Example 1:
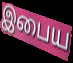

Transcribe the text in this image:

இபைய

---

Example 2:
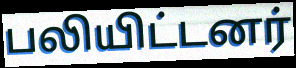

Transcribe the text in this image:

பலியிட்டனர்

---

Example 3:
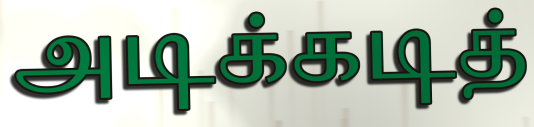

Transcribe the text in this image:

அடிக்கடித்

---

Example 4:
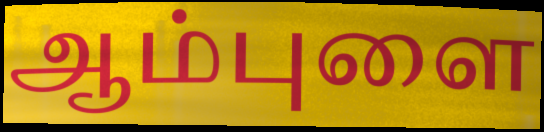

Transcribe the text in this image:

ஆம்புளை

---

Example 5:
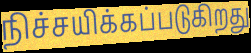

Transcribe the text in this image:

நிச்சயிக்கப்படுகிறது